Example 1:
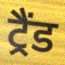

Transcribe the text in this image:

ट्रैंड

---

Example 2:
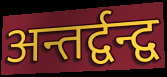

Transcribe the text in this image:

अन्तर्द्वन्द्व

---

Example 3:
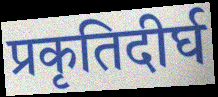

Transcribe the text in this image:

प्रकृतिदीर्घ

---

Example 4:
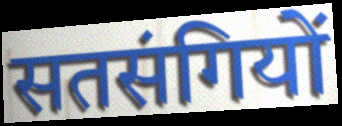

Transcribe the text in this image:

सतसंगियों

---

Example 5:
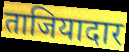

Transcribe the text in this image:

ताजियादार